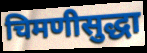
चिमणीसुद्धा